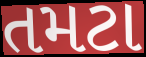
તમટા